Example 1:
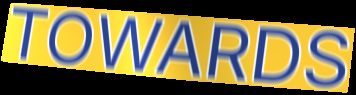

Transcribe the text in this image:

TOWARDS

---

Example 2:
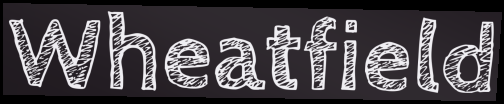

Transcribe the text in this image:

Wheatfield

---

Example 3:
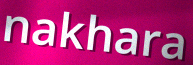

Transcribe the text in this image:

nakhara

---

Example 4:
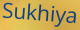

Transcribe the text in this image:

Sukhiya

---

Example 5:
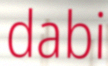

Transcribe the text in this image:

dabi